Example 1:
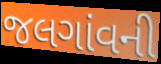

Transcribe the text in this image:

જલગાંવની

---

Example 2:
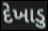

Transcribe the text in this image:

દેખાડુ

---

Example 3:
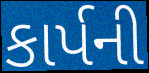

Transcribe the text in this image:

કાર્પની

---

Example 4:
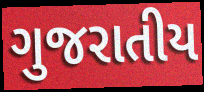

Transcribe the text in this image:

ગુજરાતીય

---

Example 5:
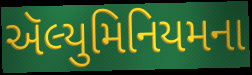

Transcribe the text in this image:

ઍલ્યુમિનિયમના